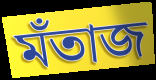
মঁতাজ